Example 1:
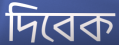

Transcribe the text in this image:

দিবেক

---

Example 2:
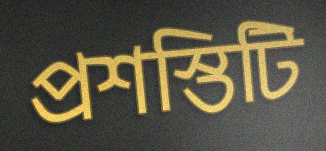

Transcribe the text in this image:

প্রশস্তিটি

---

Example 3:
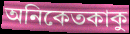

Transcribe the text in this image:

অনিকেতকাকু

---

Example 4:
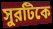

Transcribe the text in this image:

সুরটিকে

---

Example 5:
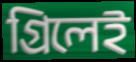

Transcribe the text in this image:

গ্রিলেই